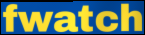
fwatch